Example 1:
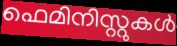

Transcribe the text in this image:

ഫെമിനിസ്റ്റുകൾ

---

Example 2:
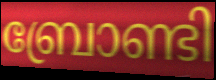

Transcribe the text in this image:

ബ്രോണ്ടി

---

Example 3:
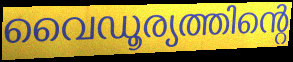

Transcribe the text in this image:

വൈഡൂര്യത്തിന്റെ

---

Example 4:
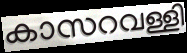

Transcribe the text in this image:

കാസറവള്ളി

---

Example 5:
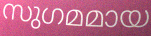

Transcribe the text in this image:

സുഗമമായ